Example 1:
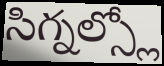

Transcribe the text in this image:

సిగ్నల్స్లో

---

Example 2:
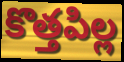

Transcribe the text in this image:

కొత్తపిల్ల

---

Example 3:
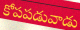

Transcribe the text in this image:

కోపపడువాడు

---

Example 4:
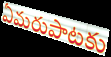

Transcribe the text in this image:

ఏమరుపాటకు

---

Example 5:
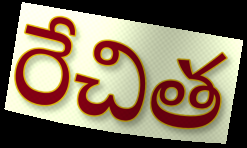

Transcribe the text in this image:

రేచిత